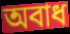
অবাধ